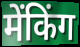
मेंकिंग